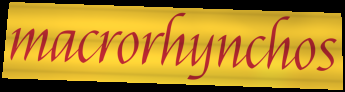
macrorhynchos